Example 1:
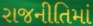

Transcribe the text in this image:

રાજનીતિમાં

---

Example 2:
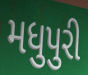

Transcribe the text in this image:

મધુપુરી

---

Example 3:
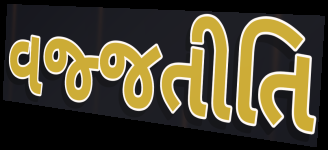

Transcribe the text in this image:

વજ્જતીતિ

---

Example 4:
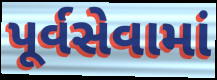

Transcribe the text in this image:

પૂર્વસેવામાં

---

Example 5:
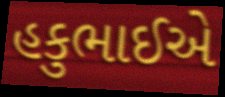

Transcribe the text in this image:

હકુભાઈએ